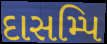
દાસમ્પિ